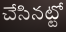
చేసినట్టో